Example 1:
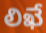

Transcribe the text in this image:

లిఖే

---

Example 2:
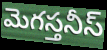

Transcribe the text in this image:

మెగస్తనీస్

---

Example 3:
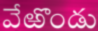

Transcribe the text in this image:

వేఱొండు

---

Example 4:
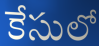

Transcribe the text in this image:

కేసులో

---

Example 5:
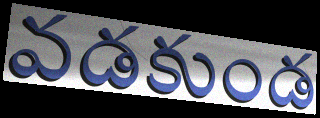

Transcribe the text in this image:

వడకుండ